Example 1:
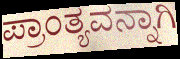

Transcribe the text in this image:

ಪ್ರಾಂತ್ಯವನ್ನಾಗಿ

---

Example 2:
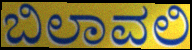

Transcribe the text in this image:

ಬಿಲಾವಲಿ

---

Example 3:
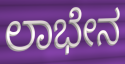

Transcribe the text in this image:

ಲಾಭೇನ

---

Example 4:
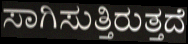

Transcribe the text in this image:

ಸಾಗಿಸುತ್ತಿರುತ್ತದೆ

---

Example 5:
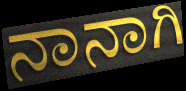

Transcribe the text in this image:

ನಾನಾಗಿ